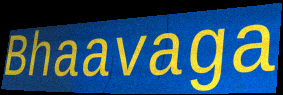
Bhaavaga